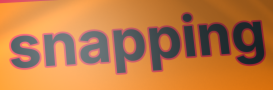
snapping